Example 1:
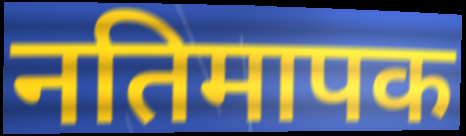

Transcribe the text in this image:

नतिमापक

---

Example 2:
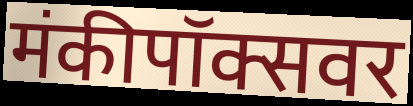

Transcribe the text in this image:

मंकीपॉक्सवर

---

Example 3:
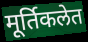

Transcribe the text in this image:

मूर्तिकलेत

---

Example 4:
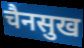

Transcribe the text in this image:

चैनसुख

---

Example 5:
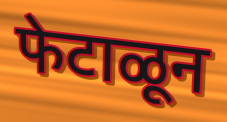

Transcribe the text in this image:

फेटाळून